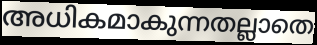
അധികമാകുന്നതല്ലാതെ